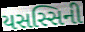
યસસ્સિની